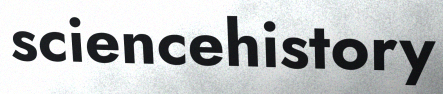
sciencehistory